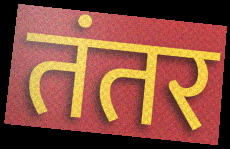
तंतर